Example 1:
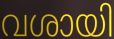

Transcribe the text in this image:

വശായി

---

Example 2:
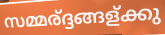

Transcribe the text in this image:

സമ്മര്ദ്ദങ്ങള്ക്കു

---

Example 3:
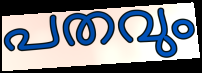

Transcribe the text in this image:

പതവും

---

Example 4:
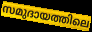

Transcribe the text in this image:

സമുദായത്തിലെ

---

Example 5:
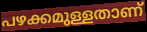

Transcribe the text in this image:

പഴക്കമുള്ളതാണ്